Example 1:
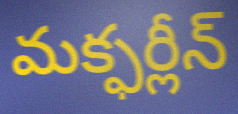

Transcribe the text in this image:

మక్ఫర్లీన్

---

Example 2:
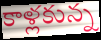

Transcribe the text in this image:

కాళ్లకున్న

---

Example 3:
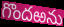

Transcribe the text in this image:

గొందఱను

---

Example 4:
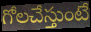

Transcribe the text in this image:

గోలచేస్తుంటే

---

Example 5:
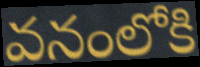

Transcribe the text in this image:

వనంలోకి